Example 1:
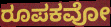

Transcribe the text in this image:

ರೂಪಕವೋ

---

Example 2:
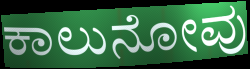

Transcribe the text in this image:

ಕಾಲುನೋವು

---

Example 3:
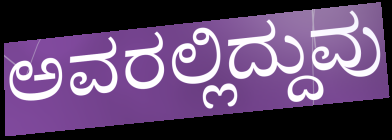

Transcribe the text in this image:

ಅವರಲ್ಲಿದ್ದುವು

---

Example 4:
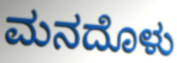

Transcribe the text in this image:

ಮನದೊಳು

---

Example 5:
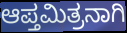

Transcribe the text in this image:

ಆಪ್ತಮಿತ್ರನಾಗಿ